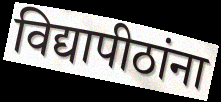
विद्यापीठांना